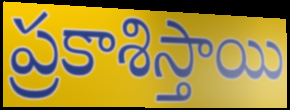
ప్రకాశిస్తాయి